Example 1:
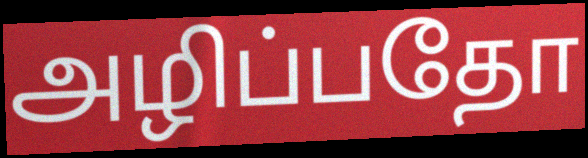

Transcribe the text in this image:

அழிப்பதோ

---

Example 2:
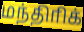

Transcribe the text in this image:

மந்திரிக்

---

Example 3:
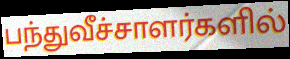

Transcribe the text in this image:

பந்துவீச்சாளர்களில்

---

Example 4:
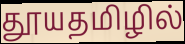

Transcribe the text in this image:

தூயதமிழில்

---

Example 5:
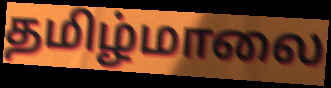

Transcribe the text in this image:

தமிழ்மாலை